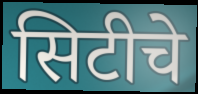
सिटीचे